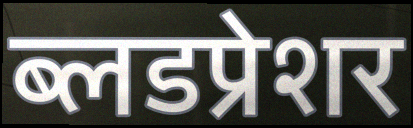
ब्लडप्रेशर